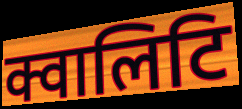
क्वालिटि